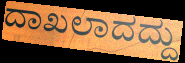
ದಾಖಲಾದದ್ದು